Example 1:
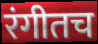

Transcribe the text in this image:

रंगीतच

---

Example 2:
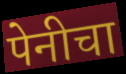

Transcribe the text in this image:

पेनीचा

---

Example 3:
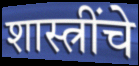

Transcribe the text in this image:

शास्त्रींचे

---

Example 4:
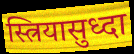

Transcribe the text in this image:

स्त्रियासुध्दा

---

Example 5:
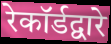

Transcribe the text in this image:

रेकॉर्डद्वारे